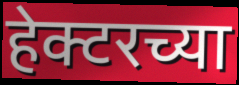
हेक्टरच्या